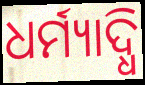
ଧର୍ମ୍ୟାଦ୍ଧି